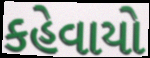
કહેવાયો